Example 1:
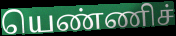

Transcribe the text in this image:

யெண்ணிச்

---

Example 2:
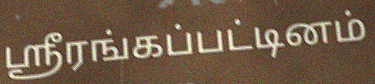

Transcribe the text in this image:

ஸ்ரீரங்கப்பட்டினம்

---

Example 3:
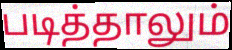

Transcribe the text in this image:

படித்தாலும்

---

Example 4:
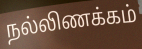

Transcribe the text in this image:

நல்லிணக்கம்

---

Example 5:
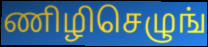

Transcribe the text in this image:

ணிழிசெழுங்